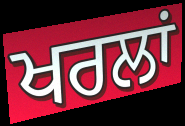
ਖਰਲਾਂ